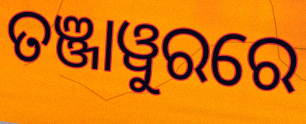
ତଞ୍ଜାୱୁରରେ